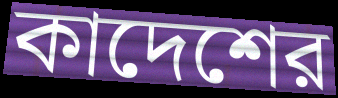
কাদেশের